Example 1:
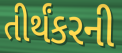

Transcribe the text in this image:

તીર્થંકરની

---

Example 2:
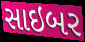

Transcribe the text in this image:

સાઇબર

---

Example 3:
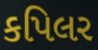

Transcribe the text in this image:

કપિલર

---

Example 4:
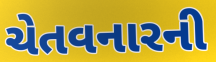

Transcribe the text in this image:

ચેતવનારની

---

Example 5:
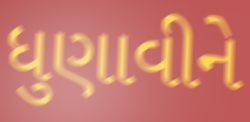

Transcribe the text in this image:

ધુણાવીને